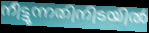
നീട്ടുന്നതിനിടയിൽ